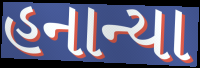
હનાન્યા